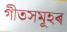
গীতসমূহৰ